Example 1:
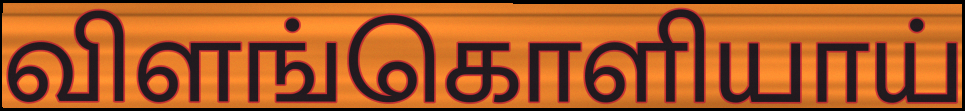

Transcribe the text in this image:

விளங்கொளியாய்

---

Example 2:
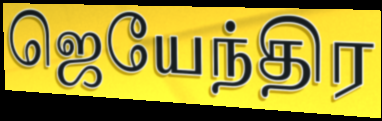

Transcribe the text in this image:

ஜெயேந்திர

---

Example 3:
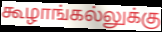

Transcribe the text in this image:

கூழாங்கல்லுக்கு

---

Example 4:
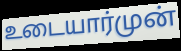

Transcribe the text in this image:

உடையார்முன்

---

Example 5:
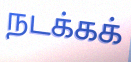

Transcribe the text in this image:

நடக்கக்